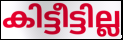
കിട്ടീട്ടില്ല